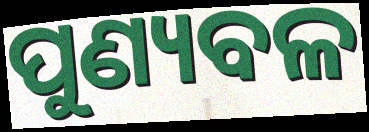
ପୁଣ୍ୟବଳ